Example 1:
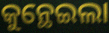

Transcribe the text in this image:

କୁନ୍ଥେଇଲା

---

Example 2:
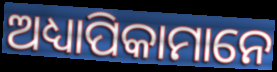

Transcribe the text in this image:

ଅଧ୍ୟାପିକାମାନେ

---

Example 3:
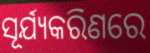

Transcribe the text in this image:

ସୂର୍ଯ୍ୟକରିଣରେ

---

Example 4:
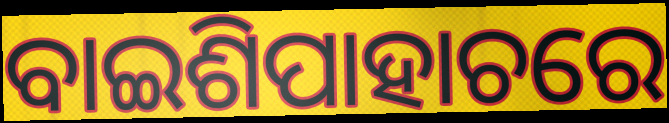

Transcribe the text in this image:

ବାଇଶିପାହାଚରେ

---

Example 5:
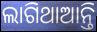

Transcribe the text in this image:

ଲାଗିଥାଆନ୍ତି